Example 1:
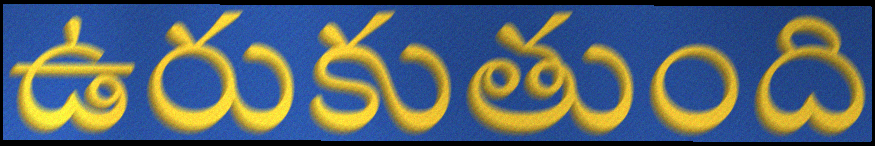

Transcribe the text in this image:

ఉరుకుతుంది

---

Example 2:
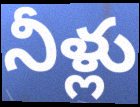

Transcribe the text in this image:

నీళ్లు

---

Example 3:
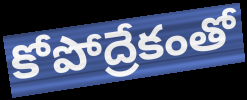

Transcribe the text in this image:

కోపోద్రేకంతో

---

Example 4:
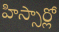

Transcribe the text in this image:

హిస్సార్లో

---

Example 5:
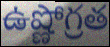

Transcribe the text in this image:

ఉష్ణోగ్రత